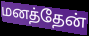
மனத்தேன்